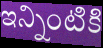
ఇన్నింటికి